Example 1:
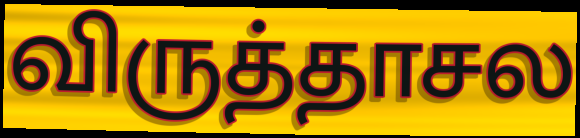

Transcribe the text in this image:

விருத்தாசல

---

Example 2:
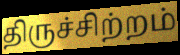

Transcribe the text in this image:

திருச்சிற்றம்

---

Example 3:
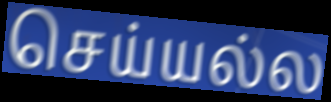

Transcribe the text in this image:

செய்யல்ல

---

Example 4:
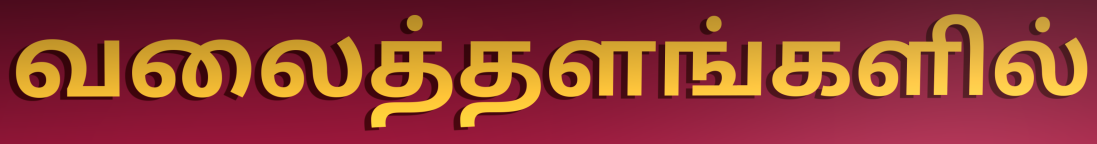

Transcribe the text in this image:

வலைத்தளங்களில்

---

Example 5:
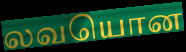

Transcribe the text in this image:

லவயொன